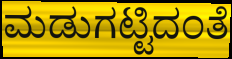
ಮಡುಗಟ್ಟಿದಂತೆ